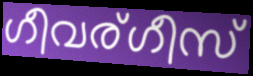
ഗീവര്ഗീസ്